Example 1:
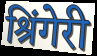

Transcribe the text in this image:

श्रिंगेरी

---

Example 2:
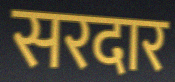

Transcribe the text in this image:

सरदार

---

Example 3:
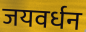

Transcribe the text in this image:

जयवर्धन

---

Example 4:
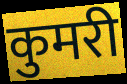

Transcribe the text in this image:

कुमरी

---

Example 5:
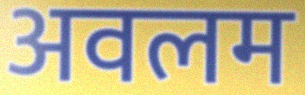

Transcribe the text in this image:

अवलम